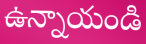
ఉన్నాయండి